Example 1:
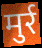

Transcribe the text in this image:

मुर्र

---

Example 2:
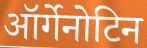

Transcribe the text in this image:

ऑर्गेनोटिन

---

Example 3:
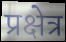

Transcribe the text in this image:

प्रक्षेत्र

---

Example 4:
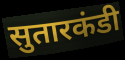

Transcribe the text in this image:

सुतारकंडी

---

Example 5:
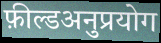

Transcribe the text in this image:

फ़ील्डअनुप्रयोग